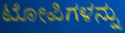
ಟೋಪಿಗಳನ್ನು